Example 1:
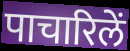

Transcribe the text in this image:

पाचारिलें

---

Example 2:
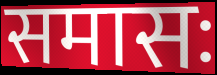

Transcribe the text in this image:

समासः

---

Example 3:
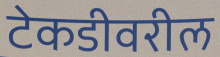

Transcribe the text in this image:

टेकडीवरील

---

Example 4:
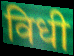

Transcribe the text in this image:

विधी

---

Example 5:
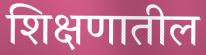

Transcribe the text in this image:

शिक्षणातील